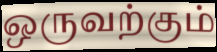
ஒருவற்கும்